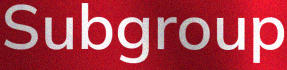
Subgroup